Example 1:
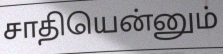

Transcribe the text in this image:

சாதியென்னும்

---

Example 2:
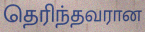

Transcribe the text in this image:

தெரிந்தவரான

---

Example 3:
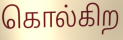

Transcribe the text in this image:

கொல்கிற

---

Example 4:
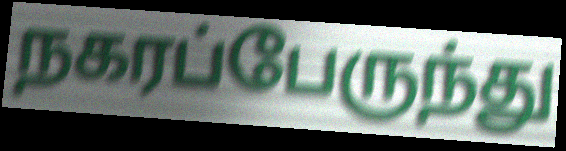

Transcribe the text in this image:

நகரப்பேருந்து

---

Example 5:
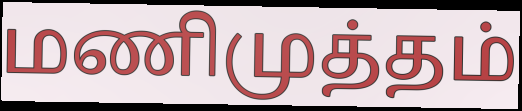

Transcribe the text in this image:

மணிமுத்தம்